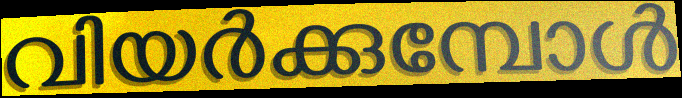
വിയർക്കുമ്പോൾ